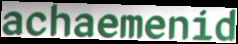
achaemenid